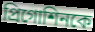
প্রিগোশিনকে